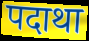
पदाथा